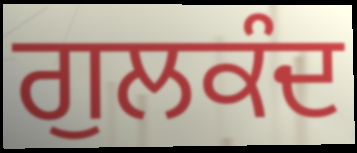
ਗੁਲਕੰਦ